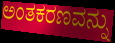
ಅಂತಕರಣವನ್ನು